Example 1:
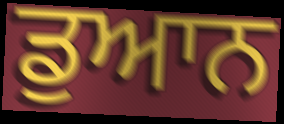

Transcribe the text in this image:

ਡੁਆਨ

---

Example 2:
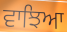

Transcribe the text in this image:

ਵਾਝਿਆ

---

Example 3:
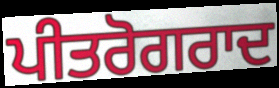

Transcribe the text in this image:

ਪੀਤਰੋਗਰਾਦ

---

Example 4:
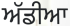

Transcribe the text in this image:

ਅੱਡੀਆ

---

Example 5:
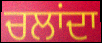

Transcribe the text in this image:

ਚਲਾਂਦਾ